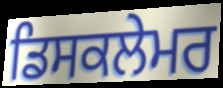
ਡਿਸਕਲੇਮਰ